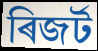
ৰিজৰ্ট